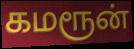
கமரூன்